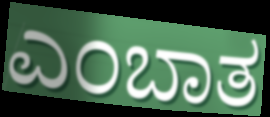
ಎಂಬಾತ